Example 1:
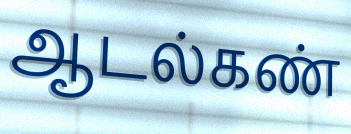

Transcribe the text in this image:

ஆடல்கண்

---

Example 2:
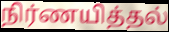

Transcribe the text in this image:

நிர்ணயித்தல்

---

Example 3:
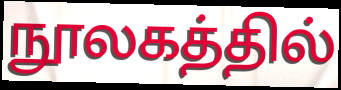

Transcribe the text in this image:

நூலகத்தில்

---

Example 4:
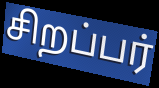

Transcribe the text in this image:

சிறப்பர்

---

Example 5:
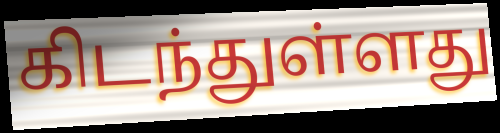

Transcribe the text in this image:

கிடந்துள்ளது